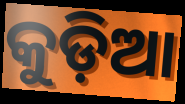
କୁଡ଼ିଆ